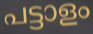
പട്ടാളം